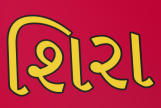
શિરા